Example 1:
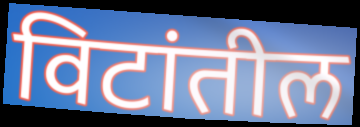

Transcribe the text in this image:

विटांतील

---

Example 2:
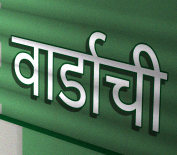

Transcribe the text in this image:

वार्डाची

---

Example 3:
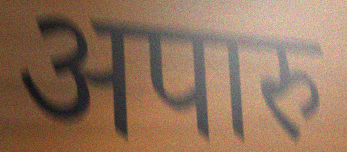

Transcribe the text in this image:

अपारु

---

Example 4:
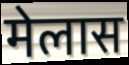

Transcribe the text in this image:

मेलास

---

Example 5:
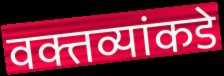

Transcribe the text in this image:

वक्तव्यांकडे